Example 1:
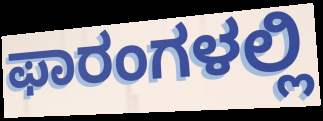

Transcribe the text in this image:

ಫಾರಂಗಳಲ್ಲಿ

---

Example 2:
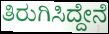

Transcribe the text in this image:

ತಿರುಗಿಸಿದ್ದೇನೆ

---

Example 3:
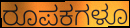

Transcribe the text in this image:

ರೂಪಕಗಳೂ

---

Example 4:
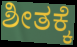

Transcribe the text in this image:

ಶೀತಕ್ಕೆ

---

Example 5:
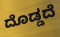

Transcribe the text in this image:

ದೊಡ್ಡದೆ